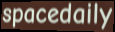
spacedaily